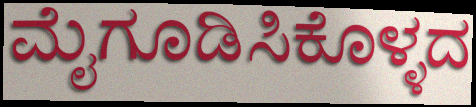
ಮೈಗೂಡಿಸಿಕೊಳ್ಳದ